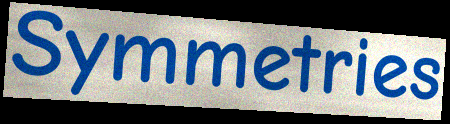
Symmetries